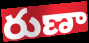
రుణా